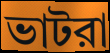
ভাটরা